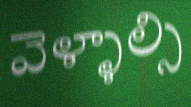
వెళ్ళాల్సి